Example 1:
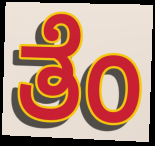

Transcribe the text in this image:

ತೆಂ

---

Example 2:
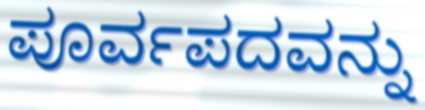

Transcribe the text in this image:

ಪೂರ್ವಪದವನ್ನು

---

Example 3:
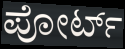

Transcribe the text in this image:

ಪೋರ್ಟ್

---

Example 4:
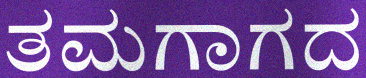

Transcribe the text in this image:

ತಮಗಾಗದ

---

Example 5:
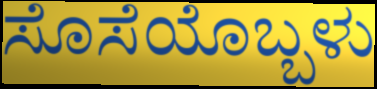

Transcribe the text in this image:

ಸೊಸೆಯೊಬ್ಬಳು